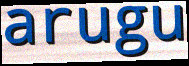
arugu